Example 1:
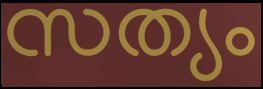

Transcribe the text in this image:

സത്യം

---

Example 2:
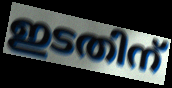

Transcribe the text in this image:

ഇടതിന്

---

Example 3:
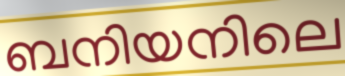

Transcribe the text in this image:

ബനിയനിലെ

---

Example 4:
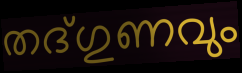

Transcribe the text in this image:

തദ്ഗുണവും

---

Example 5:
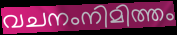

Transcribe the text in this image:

വചനംനിമിത്തം